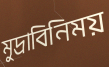
মুদ্রাবিনিময়